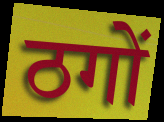
ठगों